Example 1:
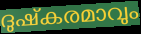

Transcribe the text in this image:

ദുഷ്‌കരമാവും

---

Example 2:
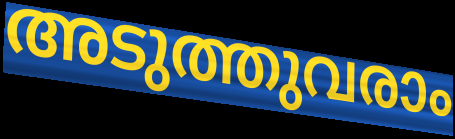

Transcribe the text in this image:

അടുത്തുവരാം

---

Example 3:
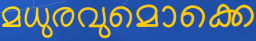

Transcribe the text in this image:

മധുരവുമൊക്കെ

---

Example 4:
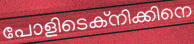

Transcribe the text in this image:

പോളിടെക്നിക്കിനെ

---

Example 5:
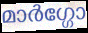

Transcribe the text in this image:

മാർഗ്ഗോ